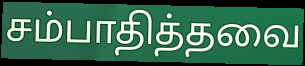
சம்பாதித்தவை